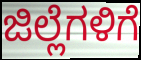
ಜಿಲ್ಲೆಗಳಿಗೆ